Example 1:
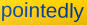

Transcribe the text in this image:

pointedly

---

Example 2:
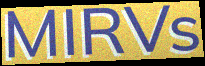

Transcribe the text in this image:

MIRVs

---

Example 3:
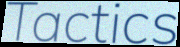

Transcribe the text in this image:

Tactics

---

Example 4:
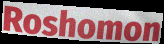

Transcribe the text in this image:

Roshomon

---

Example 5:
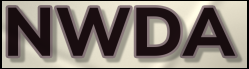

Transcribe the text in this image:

NWDA